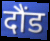
दौंड